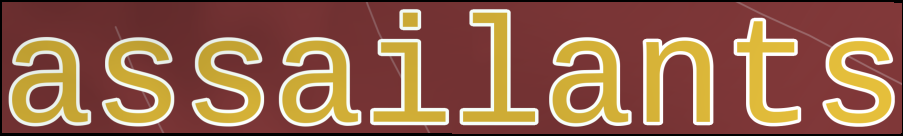
assailants